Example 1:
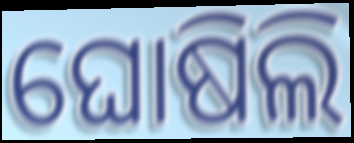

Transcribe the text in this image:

ଘୋଷିଲି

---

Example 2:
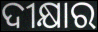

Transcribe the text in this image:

ଦୀକ୍ଷାର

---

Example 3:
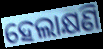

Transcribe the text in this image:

ହେଲାକ୍ଷଣି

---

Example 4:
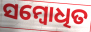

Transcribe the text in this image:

ସମ୍ବୋଧିତ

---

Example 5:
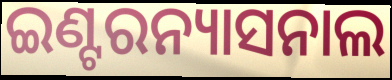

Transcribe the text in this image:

ଇଣ୍ଟରନ୍ୟାସନାଲ